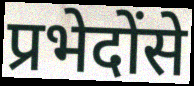
प्रभेदोंसे